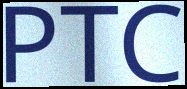
PTC